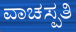
ವಾಚಸ್ಪತಿ